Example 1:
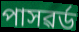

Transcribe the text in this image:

পাসৱৰ্ড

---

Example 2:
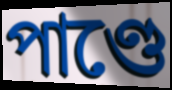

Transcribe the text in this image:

পাণ্ডে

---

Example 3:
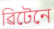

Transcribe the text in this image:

ৱিটেনে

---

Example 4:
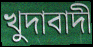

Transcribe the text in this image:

খুদাবাদী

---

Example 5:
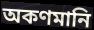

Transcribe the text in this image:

অকণমানি